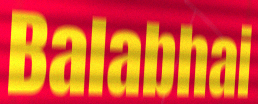
Balabhai